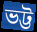
ভট্ট